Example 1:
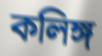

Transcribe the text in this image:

কলিঙ্গ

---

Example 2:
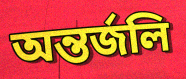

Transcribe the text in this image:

অন্তর্জলি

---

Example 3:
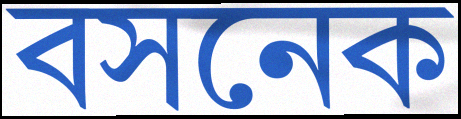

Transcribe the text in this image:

বসনেক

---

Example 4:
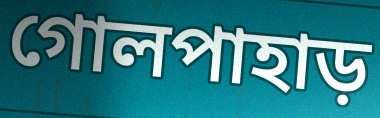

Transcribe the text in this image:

গোলপাহাড়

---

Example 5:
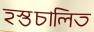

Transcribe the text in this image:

হস্তচালিত